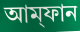
আম্‌ফান